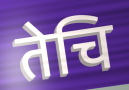
तेचि